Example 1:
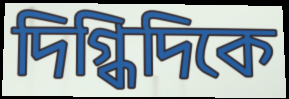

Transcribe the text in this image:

দিগ্ধিদিকে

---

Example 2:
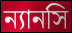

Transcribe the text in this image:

ন্যানসি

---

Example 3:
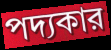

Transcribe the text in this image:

পদ্যকার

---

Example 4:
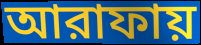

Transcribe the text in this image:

আরাফায়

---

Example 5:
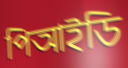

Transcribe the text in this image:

পিআইডি